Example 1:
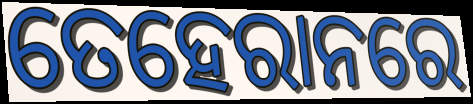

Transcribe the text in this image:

ତେହେରାନରେ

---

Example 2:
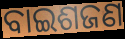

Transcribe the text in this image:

ବାଇଶଜଣ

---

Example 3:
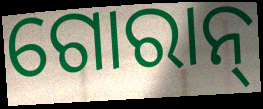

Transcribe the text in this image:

ଗୋରାନ୍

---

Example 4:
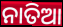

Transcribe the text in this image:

ନାତିଆ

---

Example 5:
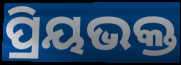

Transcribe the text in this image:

ପ୍ରିୟଭକ୍ତ